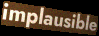
implausible